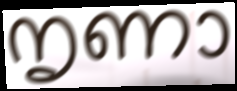
നൃണാ